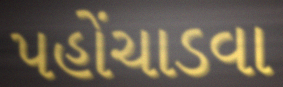
પહોંચાડવા